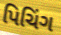
પિચિંગ